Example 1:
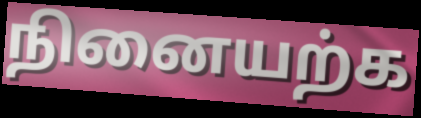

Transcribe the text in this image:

நினையற்க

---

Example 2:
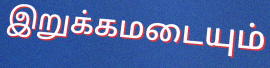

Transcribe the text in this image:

இறுக்கமடையும்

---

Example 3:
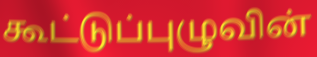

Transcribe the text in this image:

கூட்டுப்புழுவின்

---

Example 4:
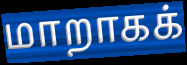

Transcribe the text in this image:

மாறாகக்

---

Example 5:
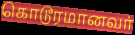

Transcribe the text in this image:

கொடூரமானவர்